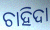
ଚାହିଦା